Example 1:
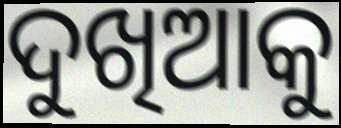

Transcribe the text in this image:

ଦୁଖିଆକୁ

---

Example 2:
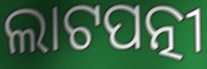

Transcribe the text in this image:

ଲାଟପତ୍ନୀ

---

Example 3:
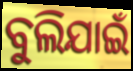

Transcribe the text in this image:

ବୁଲିଯାଇଁ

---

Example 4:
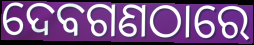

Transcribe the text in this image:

ଦେବଗଣଠାରେ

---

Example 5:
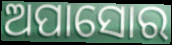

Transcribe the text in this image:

ଅପାସୋର